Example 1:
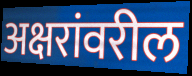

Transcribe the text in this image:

अक्षरांवरील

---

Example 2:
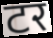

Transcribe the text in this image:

टर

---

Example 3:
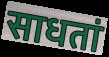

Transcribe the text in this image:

साधतां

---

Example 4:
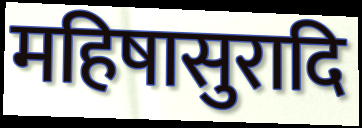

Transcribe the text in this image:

महिषासुरादि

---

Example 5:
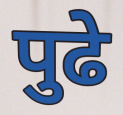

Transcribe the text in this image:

पुढे